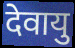
देवायु